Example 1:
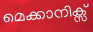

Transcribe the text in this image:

മെക്കാനിക്സ്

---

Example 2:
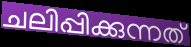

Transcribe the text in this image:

ചലിപ്പിക്കുന്നത്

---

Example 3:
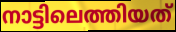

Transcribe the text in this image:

നാട്ടിലെത്തിയത്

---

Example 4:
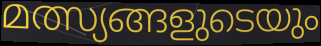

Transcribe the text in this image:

മത്സ്യങ്ങളുടെയും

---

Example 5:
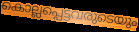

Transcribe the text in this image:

കൊല്ലപ്പെട്ടവരുടെയും